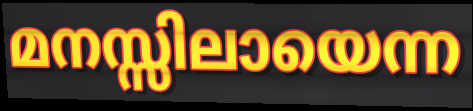
മനസ്സിലായെന്ന